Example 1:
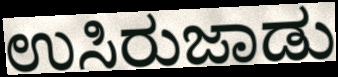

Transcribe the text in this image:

ಉಸಿರುಜಾಡು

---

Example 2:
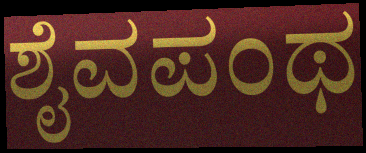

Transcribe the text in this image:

ಶೈವಪಂಥ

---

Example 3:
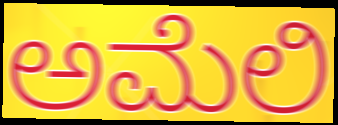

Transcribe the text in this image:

ಅಮೆಲಿ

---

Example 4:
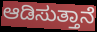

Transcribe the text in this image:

ಆಡಿಸುತ್ತಾನೆ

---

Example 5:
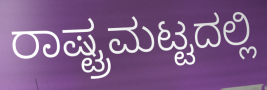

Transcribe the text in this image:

ರಾಷ್ಟ್ರಮಟ್ಟದಲ್ಲಿ